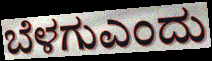
ಬೆಳಗುಎಂದು